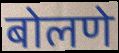
बोलणे